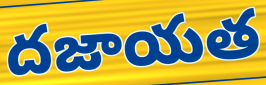
దజాయత